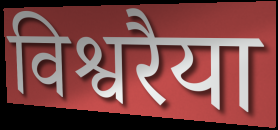
विश्वरैया